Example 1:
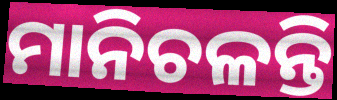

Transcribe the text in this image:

ମାନିଚଳନ୍ତି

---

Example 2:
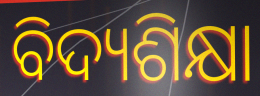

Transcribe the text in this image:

ବିଦ୍ୟଶିକ୍ଷା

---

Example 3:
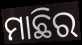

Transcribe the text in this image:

ମାଛିର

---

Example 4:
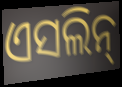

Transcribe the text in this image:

ଏସଲିନ୍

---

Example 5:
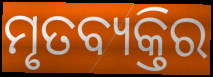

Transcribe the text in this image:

ମୃତବ୍ୟକ୍ତିର